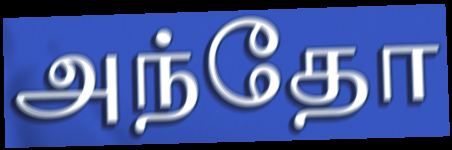
அந்தோ